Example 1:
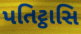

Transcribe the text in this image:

પતિટ્ઠાસિ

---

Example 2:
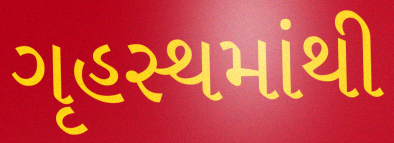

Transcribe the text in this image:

ગૃહસ્થમાંથી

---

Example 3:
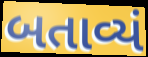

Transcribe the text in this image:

બતાવ્યં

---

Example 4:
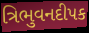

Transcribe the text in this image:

ત્રિભુવનદીપક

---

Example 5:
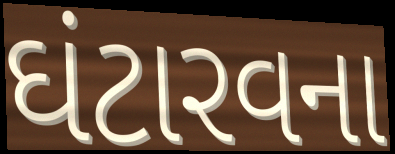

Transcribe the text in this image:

ઘંટારવના